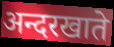
अन्दरखाते